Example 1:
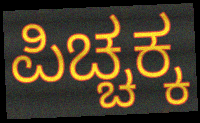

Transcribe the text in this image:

ಪಿಚ್ಚಕ್ಕ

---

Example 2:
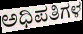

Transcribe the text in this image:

ಅಧಿಪತಿಗಳ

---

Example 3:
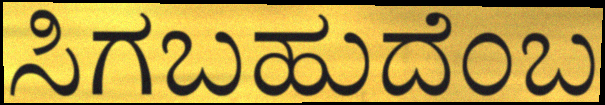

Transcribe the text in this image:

ಸಿಗಬಹುದೆಂಬ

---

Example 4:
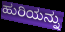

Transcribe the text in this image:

ಹುರಿಯನ್ನು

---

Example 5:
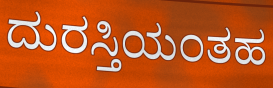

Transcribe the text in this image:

ದುರಸ್ತಿಯಂತಹ